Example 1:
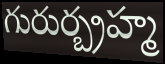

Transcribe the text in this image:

గురుర్బ్రహ్మ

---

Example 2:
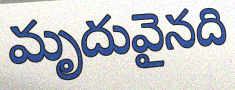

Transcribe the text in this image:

మృదువైనది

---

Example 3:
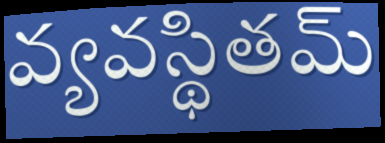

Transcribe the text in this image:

వ్యవస్థితమ్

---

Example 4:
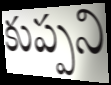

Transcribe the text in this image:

కుప్పని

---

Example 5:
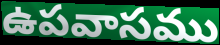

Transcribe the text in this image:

ఉపవాసము